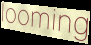
looming